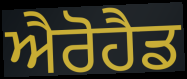
ਐਰੋਹੈਡ